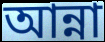
আন্না